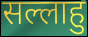
सल्लाहु